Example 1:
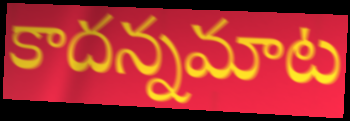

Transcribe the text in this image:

కాదన్నమాట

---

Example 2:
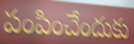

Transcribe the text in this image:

పంపించేందుకు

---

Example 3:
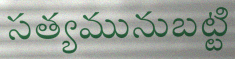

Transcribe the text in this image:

సత్యమునుబట్టి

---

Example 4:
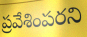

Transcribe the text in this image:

ప్రవేశింపరని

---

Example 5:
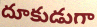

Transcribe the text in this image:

దూకుడుగా